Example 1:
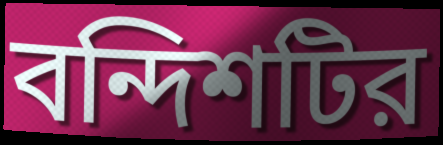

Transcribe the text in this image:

বন্দিশটির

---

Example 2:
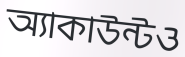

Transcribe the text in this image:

অ্যাকাউন্টও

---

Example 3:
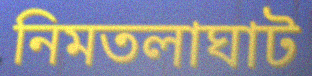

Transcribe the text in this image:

নিমতলাঘাট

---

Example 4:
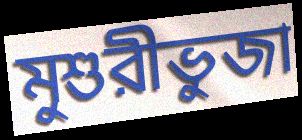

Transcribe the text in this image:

মুশুরীভুজা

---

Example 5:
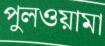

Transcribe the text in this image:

পুলওয়ামা